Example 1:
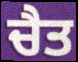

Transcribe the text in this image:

ਚੈਤ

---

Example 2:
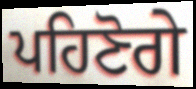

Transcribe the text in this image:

ਪਹਿਣੋਗੇ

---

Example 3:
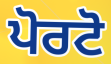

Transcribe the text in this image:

ਪੋਰਟੋ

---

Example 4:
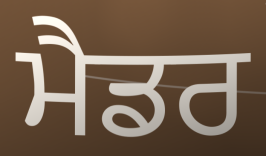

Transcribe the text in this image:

ਮੈਡਰ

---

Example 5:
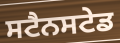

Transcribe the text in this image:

ਸਟੈਨਸਟੇਡ